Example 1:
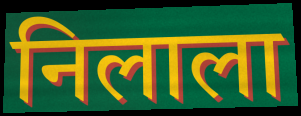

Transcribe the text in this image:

निलाला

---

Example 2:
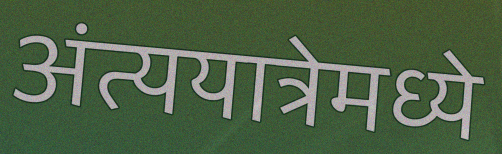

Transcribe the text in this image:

अंत्ययात्रेमध्ये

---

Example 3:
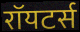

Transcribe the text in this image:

रॉयटर्स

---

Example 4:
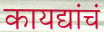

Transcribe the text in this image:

कायद्यांचं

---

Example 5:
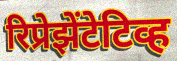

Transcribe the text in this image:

रिप्रेझेंटेटिव्ह